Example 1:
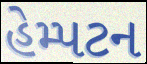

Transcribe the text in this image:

હેમ્પટન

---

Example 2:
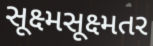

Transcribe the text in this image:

સૂક્ષ્મસૂક્ષ્મતર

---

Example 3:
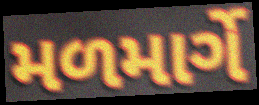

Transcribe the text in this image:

મળમાર્ગે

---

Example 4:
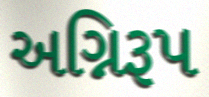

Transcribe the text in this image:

અગ્નિરૂપ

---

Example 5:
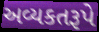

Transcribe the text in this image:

અવ્યકતરૂપે